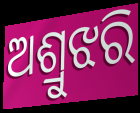
ଅଶ୍ରୁଝରି